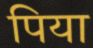
पिया